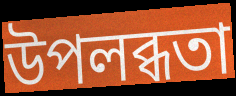
উপলব্ধতা